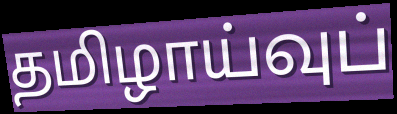
தமிழாய்வுப்